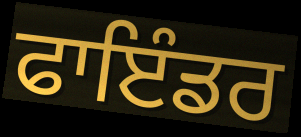
ਫਾਇੰਡਰ